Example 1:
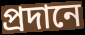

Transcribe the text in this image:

প্ৰদানে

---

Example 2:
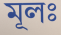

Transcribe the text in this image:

মূলঃ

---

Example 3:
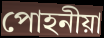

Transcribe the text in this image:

পোহনীয়া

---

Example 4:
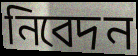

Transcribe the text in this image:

নিবেদন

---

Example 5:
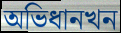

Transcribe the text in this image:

অভিধানখন